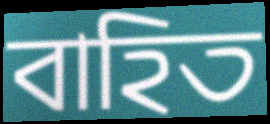
বাহিত